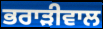
ਭਰਾੜੀਵਾਲ